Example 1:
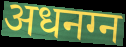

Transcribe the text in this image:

अधनग्न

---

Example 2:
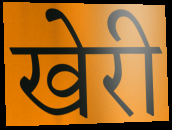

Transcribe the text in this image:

खेरी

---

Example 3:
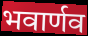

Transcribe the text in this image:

भवार्णव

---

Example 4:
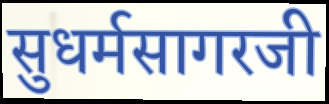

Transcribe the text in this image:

सुधर्मसागरजी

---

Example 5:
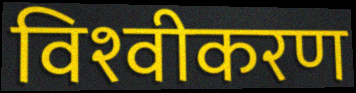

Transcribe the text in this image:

विश्वीकरण